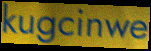
kugcinwe